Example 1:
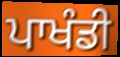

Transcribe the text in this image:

ਪਾਖੰਡੀ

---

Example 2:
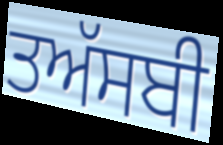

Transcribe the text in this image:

ਤਅੱਸਬੀ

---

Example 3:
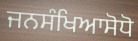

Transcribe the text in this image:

ਜਨਸੰਖਿਆਸੋਧੋ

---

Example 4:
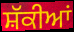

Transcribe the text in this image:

ਸ਼ੱਕੀਆਂ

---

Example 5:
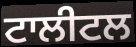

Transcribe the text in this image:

ਟਾਲੀਟਲ